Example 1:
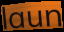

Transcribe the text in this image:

laun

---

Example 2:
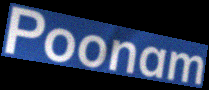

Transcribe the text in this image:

Poonam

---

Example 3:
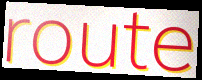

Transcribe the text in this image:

route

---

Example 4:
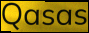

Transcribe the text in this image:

Qasas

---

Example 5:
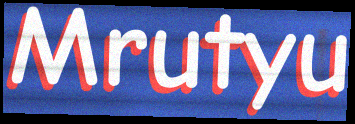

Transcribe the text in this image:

Mrutyu